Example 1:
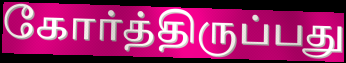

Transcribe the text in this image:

கோர்த்திருப்பது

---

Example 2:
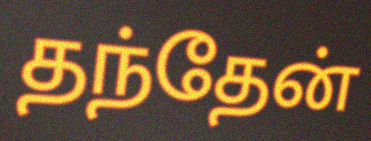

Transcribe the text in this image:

தந்தேன்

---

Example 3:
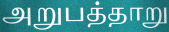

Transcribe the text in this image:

அறுபத்தாறு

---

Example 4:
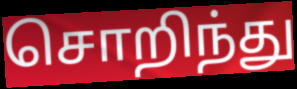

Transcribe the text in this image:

சொறிந்து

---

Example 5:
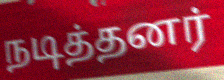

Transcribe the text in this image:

நடித்தனர்